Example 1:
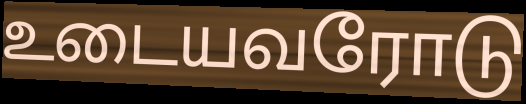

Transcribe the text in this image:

உடையவரோடு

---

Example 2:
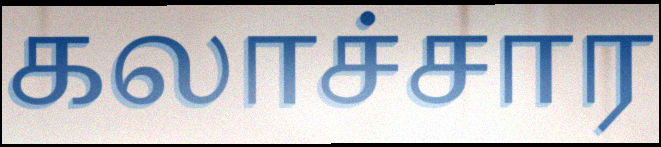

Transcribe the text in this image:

கலாச்சார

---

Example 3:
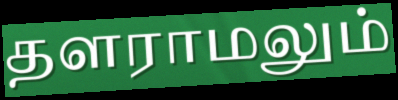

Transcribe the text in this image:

தளராமலும்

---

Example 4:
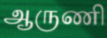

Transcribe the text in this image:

ஆருணி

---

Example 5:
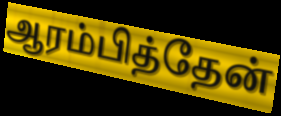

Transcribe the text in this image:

ஆரம்பித்தேன்